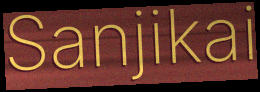
Sanjikai